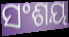
ସଂଶୟ